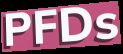
PFDs